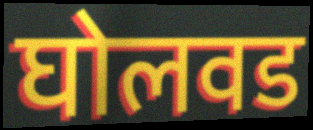
घोलवड